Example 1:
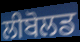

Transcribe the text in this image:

ਲੀਬੋਲਡ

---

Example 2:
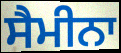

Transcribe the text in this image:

ਸੈਮੀਨਾ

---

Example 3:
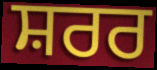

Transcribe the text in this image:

ਸ਼ਰਰ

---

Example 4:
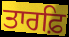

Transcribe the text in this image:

ਤਾਰਫ਼ਿ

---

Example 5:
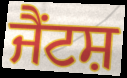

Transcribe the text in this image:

ਜੈਂਟਸ਼